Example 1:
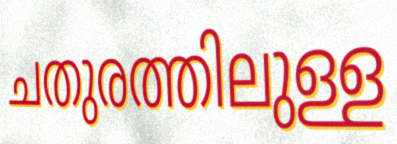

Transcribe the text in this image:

ചതുരത്തിലുള്ള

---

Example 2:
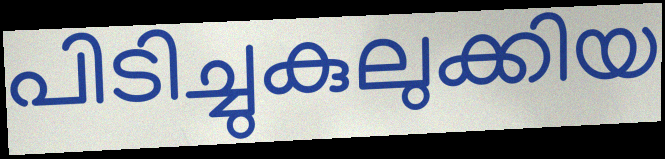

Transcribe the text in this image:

പിടിച്ചുകുലുക്കിയ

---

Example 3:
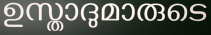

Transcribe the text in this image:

ഉസ്താദുമാരുടെ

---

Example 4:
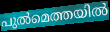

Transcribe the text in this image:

പുൽമെത്തയിൽ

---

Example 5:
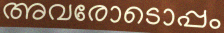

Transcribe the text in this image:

അവരോടൊപ്പം